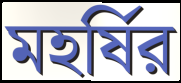
মহর্ষির